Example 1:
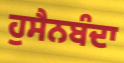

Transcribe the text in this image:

ਹੁਸੈਨਬੰਦਾ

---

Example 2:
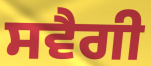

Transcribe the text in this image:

ਸਵੈਗੀ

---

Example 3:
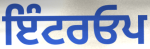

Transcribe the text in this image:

ਇੰਟਰਓਪ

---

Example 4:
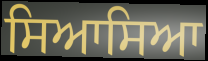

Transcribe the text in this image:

ਸਿਆਸਿਆ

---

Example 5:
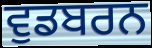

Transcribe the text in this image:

ਵੁਡਬਰਨ